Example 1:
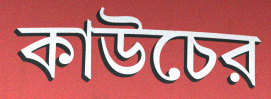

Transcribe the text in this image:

কাউচের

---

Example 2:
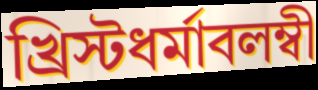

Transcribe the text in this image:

খ্রিস্টধর্মাবলম্বী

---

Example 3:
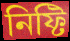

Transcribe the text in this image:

নিফ্টি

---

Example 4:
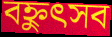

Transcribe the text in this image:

বহ্নুৎসব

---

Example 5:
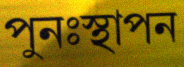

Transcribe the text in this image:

পুনঃস্থাপন